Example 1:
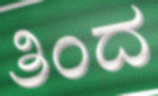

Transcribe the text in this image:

ತಿಂದ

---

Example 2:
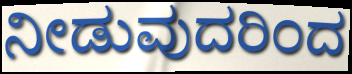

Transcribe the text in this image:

ನೀಡುವುದರಿಂದ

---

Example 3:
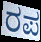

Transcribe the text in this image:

ರಪ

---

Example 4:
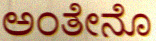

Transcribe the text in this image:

ಅಂತೇನೊ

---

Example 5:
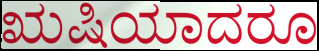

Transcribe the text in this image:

ಋಷಿಯಾದರೂ